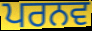
ਪਰਨਵ